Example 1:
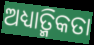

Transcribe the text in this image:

ଅଧ୍ୟାତ୍ମିକତା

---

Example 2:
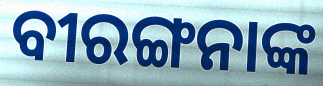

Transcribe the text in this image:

ବୀରଙ୍ଗନାଙ୍କ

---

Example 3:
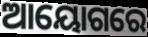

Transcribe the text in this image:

ଆୟୋଗରେ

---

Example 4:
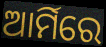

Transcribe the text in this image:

ଆର୍ମିରେ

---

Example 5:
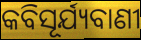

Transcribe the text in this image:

କବିସୂର୍ଯ୍ୟବାଣୀ